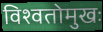
विश्वतोमुखः